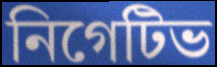
নিগেটিভ